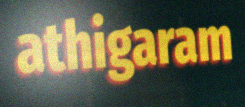
athigaram